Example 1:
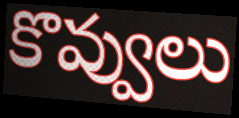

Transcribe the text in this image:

కొవ్వులు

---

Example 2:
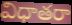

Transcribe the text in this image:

విధాతరా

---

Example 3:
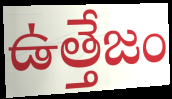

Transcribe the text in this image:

ఉత్తేజం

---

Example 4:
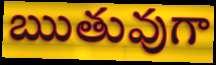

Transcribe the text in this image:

ఋతువుగా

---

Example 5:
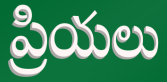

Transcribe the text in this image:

ప్రియలు